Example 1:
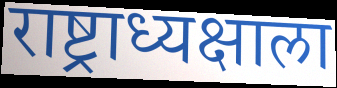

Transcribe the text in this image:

राष्ट्राध्यक्षाला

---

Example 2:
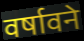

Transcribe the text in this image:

वर्षावने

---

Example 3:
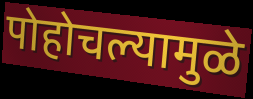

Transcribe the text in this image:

पोहोचल्यामुळे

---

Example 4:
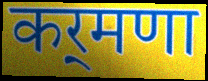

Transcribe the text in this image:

कर्मणा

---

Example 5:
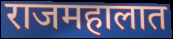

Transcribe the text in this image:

राजमहालात